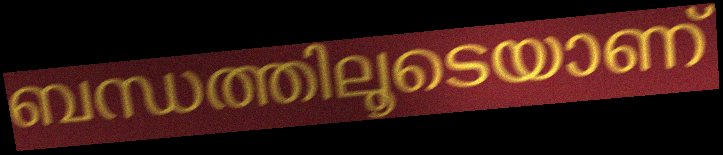
ബന്ധത്തിലൂടെയാണ്